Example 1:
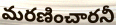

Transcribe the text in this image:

మరణించారనీ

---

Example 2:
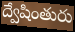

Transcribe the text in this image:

ద్వేషింతురు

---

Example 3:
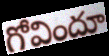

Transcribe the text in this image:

గోవిందూ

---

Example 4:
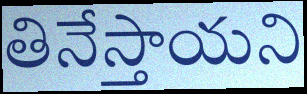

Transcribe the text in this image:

తినేస్తాయని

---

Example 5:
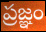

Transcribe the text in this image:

ప్రజ్ఞం